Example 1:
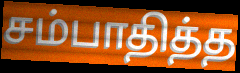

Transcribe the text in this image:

சம்பாதித்த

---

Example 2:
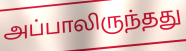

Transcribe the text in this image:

அப்பாலிருந்தது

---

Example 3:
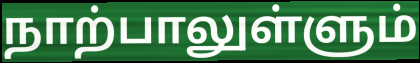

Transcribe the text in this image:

நாற்பாலுள்ளும்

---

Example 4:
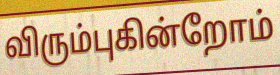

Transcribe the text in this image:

விரும்புகின்றோம்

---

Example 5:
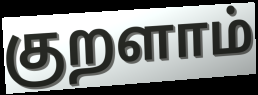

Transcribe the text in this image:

குறளாம்